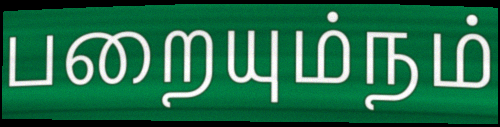
பறையும்நம்